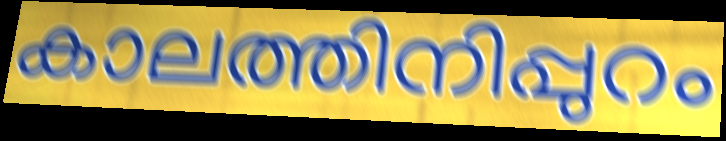
കാലത്തിനിപ്പുറം